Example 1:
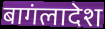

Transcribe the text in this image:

बागंलादेश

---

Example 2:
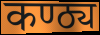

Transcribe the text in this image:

कण्ठ्य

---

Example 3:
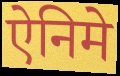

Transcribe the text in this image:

ऐनिमे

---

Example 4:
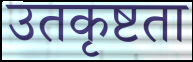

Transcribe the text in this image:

उतकृष्टता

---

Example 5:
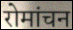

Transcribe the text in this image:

रोमांचन